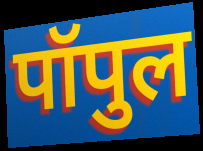
पॉपुल